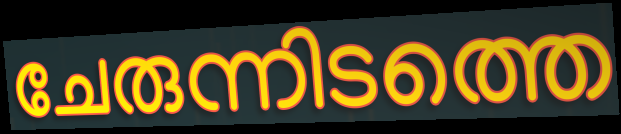
ചേരുന്നിടത്തെ